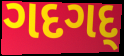
ગદગદ્